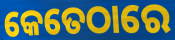
କେତେଠାରେ